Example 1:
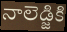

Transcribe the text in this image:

నాలెడ్జికి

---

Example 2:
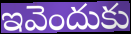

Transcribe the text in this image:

ఇవెందుకు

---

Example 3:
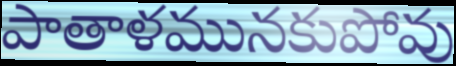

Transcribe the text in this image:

పాతాళమునకుపోవు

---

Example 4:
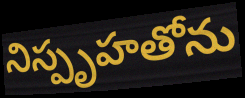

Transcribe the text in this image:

నిస్పృహతోను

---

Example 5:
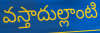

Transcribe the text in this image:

వస్తాదుల్లాంటి